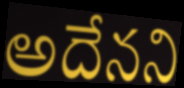
అదేనని